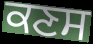
ਕਣਸ